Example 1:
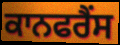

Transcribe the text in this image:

ਕਾਨਫਰੈਂਸ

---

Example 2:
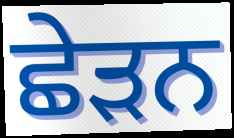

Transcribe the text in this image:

ਛੇੜਨ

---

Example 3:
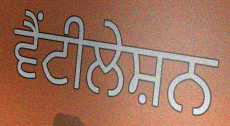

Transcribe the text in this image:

ਵੈਂਟੀਲੇਸ਼ਨ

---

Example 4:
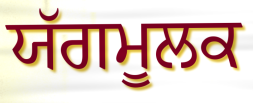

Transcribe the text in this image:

ਯੱਗਮੂਲਕ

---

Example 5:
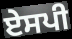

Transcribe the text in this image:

ਏਸਪੀ